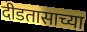
दीडतासाच्या